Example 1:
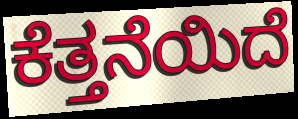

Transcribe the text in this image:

ಕೆತ್ತನೆಯಿದೆ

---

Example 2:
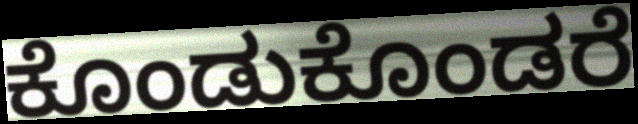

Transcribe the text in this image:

ಕೊಂಡುಕೊಂಡರೆ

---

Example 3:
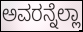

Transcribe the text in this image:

ಅವರನ್ನೆಲ್ಲಾ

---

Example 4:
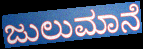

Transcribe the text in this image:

ಜುಲುಮಾನೆ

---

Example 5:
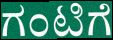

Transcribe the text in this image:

ಗಂಟಿಗೆ